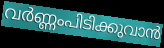
വർണ്ണംപിടിക്കുവാൻ